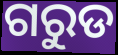
ଗରୁଡ